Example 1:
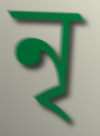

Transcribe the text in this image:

নৃ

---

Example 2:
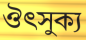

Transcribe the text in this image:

ঔৎসুক্য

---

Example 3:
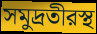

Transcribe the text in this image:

সমুদ্রতীরস্থ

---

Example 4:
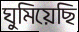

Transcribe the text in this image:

ঘুমিয়েছি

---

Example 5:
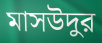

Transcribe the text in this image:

মাসউদুর